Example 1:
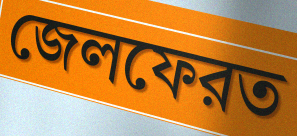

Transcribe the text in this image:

জেলফেরত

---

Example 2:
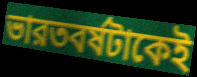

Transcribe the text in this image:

ভারতবর্ষটাকেই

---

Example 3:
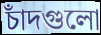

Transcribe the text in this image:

চাঁদগুলো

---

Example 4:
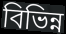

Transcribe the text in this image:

বিভিন্ন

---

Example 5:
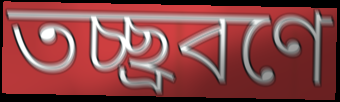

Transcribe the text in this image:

তচ্ছ্রবণে